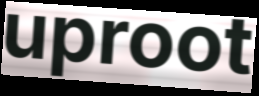
uproot